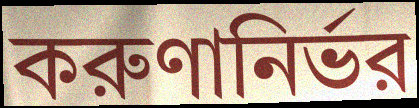
করুণানির্ভর